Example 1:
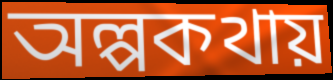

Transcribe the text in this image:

অল্পকথায়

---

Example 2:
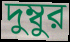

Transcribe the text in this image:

দুম্বুর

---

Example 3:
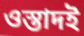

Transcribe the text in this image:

ওস্তাদই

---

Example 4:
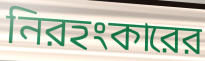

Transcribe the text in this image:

নিরহংকারের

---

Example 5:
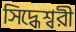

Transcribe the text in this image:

সিদ্ধেশ্বরী